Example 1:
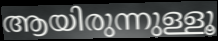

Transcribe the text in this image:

ആയിരുന്നുള്ളൂ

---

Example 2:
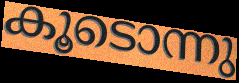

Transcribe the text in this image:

കൂടൊന്നു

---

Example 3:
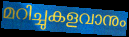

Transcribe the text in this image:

മറിച്ചുകളവാനും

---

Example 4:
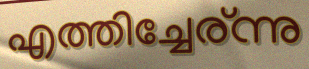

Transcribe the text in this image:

എത്തിച്ചേര്ന്നു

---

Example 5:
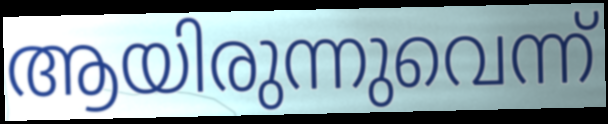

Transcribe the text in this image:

ആയിരുന്നുവെന്ന്